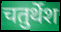
चतुर्थेश